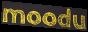
moodu